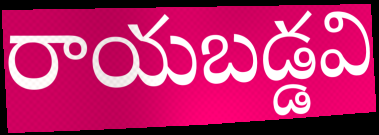
రాయబడ్డవి